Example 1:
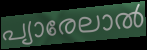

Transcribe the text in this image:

പ്യാരേലാൽ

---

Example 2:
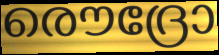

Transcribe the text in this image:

രൌദ്രോ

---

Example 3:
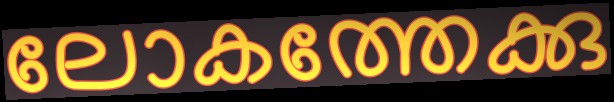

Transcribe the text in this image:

ലോകത്തേക്കു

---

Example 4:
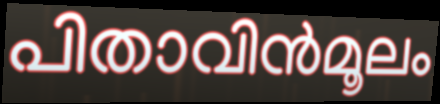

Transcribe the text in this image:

പിതാവിൻമൂലം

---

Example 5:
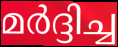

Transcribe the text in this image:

മർദ്ദിച്ച